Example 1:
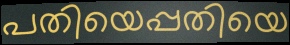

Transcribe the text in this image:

പതിയെപ്പതിയെ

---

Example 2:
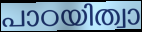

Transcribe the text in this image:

പാഠയിത്വാ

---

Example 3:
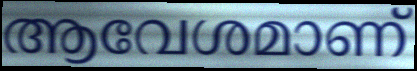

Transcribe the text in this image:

ആവേശമാണ്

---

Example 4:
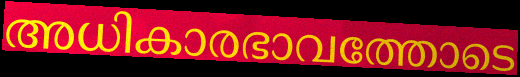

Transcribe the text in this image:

അധികാരഭാവത്തോടെ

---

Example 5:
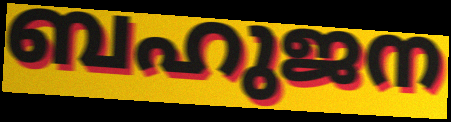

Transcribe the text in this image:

ബഹുജന